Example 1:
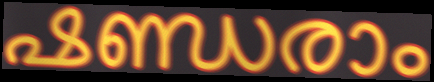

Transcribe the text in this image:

ഷണ്ഡരാം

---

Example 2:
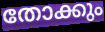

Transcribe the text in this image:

തോക്കും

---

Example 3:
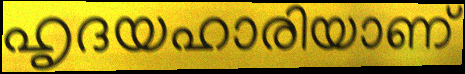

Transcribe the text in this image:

ഹൃദയഹാരിയാണ്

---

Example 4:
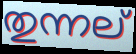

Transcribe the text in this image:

തുന്നല്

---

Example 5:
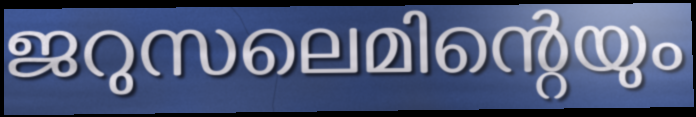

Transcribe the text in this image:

ജറുസലെമിന്റെയും